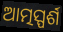
ଆତ୍ମସ୍ପର୍ଶ